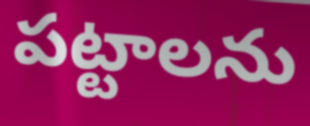
పట్టాలను